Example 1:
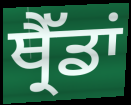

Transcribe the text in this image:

ਥ੍ਰੈੱਡਾਂ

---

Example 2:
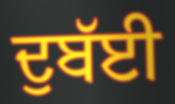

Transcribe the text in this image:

ਦੁਬੱਈ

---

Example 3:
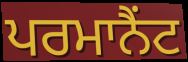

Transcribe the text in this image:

ਪਰਮਾਨੈਂਟ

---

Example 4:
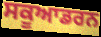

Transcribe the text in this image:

ਸਕੂਆਡਰਨ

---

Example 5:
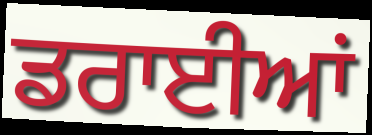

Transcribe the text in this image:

ਡਰਾਈਆਂ